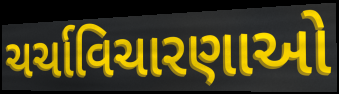
ચર્ચાવિચારણાઓ